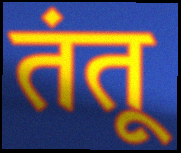
तंतू